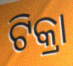
ଟିକ୍ରା